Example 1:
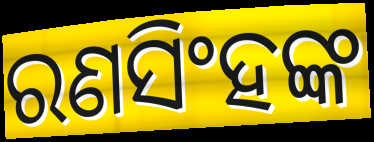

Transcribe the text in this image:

ରଣସିଂହଙ୍କ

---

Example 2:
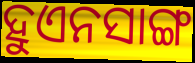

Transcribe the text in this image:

ହୁଏନସାଙ୍ଗ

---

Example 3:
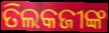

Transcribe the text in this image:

ତିଲକଜୀଙ୍କ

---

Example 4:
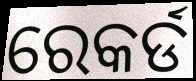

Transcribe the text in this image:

ରେକର୍ଡ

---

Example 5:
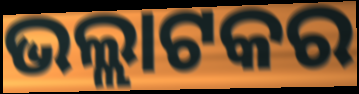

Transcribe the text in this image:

ଭଲ୍ଲାଟକର